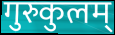
गुरुकुलम्